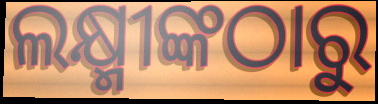
ଲକ୍ଷ୍ମୀଙ୍କଠାରୁ